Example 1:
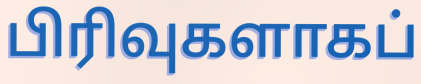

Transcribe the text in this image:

பிரிவுகளாகப்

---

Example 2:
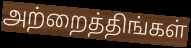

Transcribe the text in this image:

அற்றைத்திங்கள்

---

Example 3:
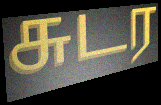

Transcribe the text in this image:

சுடர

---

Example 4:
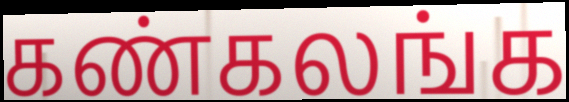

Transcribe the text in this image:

கண்கலங்க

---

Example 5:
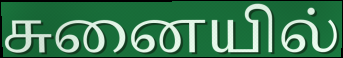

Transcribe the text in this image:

சுனையில்